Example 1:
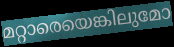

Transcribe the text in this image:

മറ്റാരെയെങ്കിലുമോ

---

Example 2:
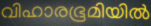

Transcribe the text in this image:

വിഹാരഭൂമിയിൽ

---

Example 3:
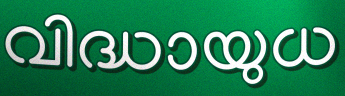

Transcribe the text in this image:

വിദ്ധായുധ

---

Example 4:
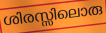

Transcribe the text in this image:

ശിരസ്സിലൊരു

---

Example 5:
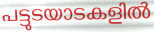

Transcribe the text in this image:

പട്ടുടയാടകളിൽ